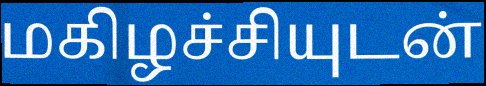
மகிழச்சியுடன்